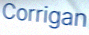
Corrigan